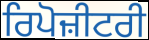
ਰਿਪੋਜ਼ੀਟਰੀ